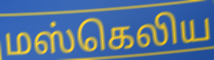
மஸ்கெலிய